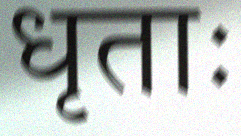
धृताः